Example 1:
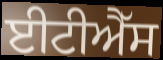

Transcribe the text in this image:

ਈਟੀਐੱਸ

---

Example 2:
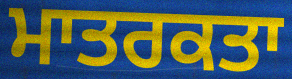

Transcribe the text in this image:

ਮਾਤਰਕਤਾ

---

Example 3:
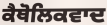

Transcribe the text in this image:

ਕੈਥੋਲਿਕਵਾਦ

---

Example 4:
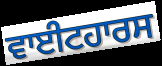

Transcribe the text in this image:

ਵਾਈਟਹਾਰਸ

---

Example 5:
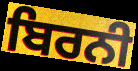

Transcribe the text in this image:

ਬਿਰਨੀ